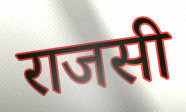
राजसी